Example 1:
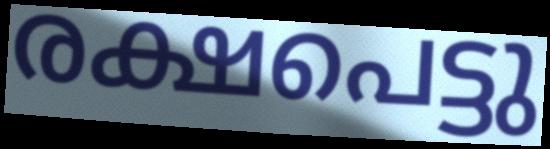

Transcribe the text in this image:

രക്ഷപെട്ടു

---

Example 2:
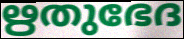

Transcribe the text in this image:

ഋതുഭേദ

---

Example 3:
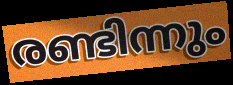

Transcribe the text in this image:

രണ്ടിന്നും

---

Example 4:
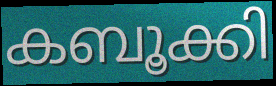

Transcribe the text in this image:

കബൂക്കി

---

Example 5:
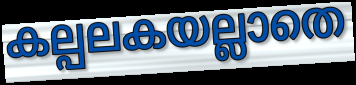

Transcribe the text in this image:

കല്പലകയല്ലാതെ